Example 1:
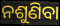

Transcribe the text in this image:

ନଶୁଣିବା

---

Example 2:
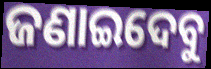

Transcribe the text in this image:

ଜଣାଇଦେବୁ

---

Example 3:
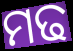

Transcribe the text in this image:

ମଢ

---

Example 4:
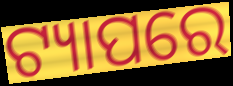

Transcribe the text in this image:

ଟ୍ୟାପରେ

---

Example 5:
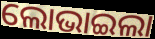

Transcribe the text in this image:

ଲୋଭାଇଲା